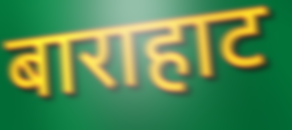
बाराहाट